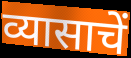
व्यासाचें